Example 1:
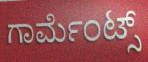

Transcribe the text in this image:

ಗಾರ್ಮೆಂಟ್ಸ್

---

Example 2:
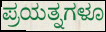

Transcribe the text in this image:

ಪ್ರಯತ್ನಗಳೂ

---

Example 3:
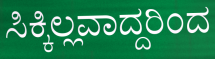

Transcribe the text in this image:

ಸಿಕ್ಕಿಲ್ಲವಾದ್ದರಿಂದ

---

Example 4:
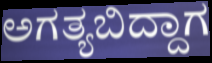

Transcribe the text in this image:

ಅಗತ್ಯಬಿದ್ದಾಗ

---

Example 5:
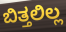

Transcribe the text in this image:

ಬಿತ್ತಲಿಲ್ಲ